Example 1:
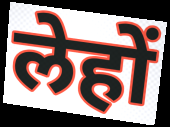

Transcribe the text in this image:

लेहों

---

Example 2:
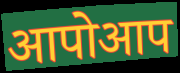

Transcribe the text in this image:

आपोआप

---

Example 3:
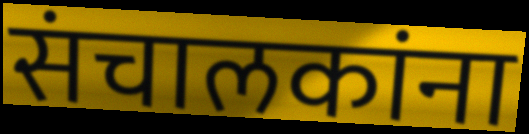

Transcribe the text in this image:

संचालकांना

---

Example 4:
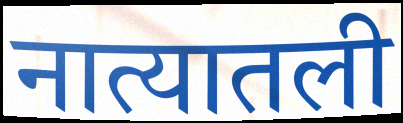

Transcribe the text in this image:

नात्यातली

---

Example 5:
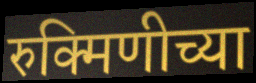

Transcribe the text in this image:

रुक्मिणीच्या